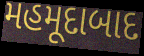
મહમૂદાબાદ